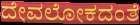
ದೇವಲೋಕದಂತೆ